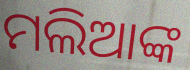
ମଲିଆଙ୍କ